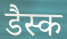
डैस्क